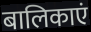
बालिकाएं